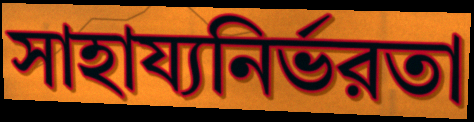
সাহায্যনির্ভরতা